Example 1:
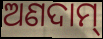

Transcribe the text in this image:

ଅଣଦାମ୍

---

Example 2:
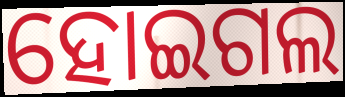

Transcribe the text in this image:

ହୋଇଗଲ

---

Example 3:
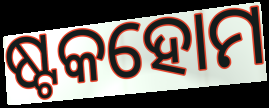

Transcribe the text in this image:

ଷ୍ଟକହୋମ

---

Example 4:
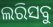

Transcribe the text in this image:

ଲରିସବୁ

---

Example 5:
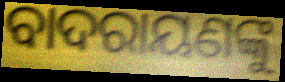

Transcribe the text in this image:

ବାଦରାୟଣଙ୍କୁ